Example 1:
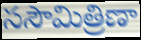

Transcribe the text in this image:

ససౌమిత్రిణా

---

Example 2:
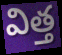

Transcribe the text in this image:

విత్త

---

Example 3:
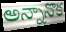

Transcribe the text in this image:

అన్నానొక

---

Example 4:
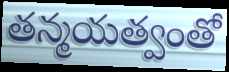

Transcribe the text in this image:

తన్మయత్వంతో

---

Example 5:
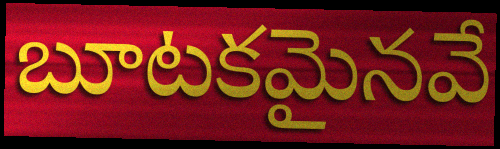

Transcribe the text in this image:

బూటకమైనవే